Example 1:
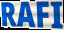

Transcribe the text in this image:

RAFI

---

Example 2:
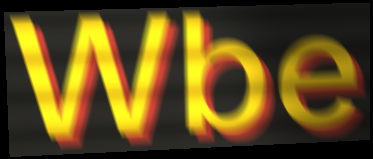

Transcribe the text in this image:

Wbe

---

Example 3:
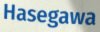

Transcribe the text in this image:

Hasegawa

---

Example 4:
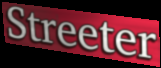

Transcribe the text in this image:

Streeter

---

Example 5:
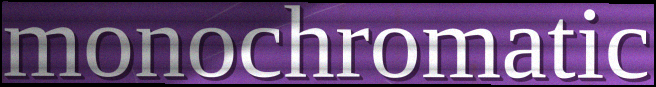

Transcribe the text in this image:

monochromatic